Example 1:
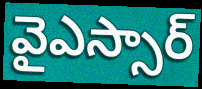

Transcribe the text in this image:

వైఎస్సార్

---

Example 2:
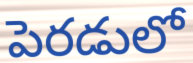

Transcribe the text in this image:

పెరడులో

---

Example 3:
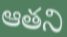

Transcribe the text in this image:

ఆతని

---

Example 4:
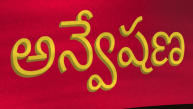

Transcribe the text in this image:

అన్వేషణ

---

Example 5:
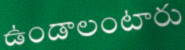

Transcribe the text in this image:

ఉండాలంటారు